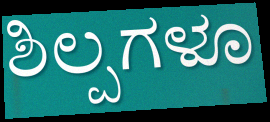
ಶಿಲ್ಪಗಳೂ